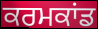
ਕਰਮਕਾਂਡ